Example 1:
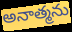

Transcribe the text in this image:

అనాత్మను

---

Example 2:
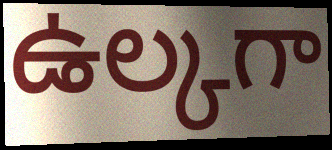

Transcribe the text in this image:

ఉల్కగా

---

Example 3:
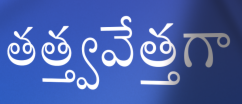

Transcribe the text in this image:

తత్త్వవేత్తగా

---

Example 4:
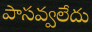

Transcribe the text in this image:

పాసవ్వలేదు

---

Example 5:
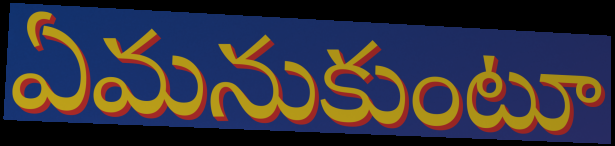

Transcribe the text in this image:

ఏమనుకుంటూ